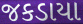
જકડાયા